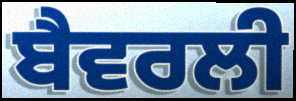
ਬੈਵਰਲੀ